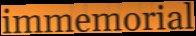
immemorial